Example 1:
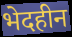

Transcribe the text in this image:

भेदहीन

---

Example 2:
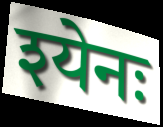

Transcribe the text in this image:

श्येनः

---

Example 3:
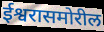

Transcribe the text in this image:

ईश्वरासमोरील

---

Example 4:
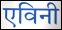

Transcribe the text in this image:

एविनी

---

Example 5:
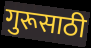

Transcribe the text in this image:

गुरूसाठी